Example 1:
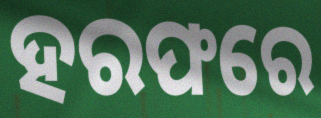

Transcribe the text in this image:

ହରଫରେ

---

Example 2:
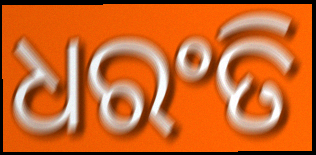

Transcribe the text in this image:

ଧରଂତି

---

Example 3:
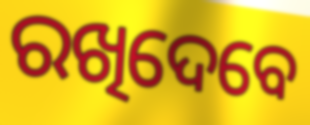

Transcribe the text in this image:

ରଖିଦେବେ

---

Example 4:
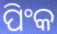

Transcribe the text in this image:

ପିଂକ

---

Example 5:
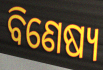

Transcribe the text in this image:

ବିଣେଷ୍ୟ